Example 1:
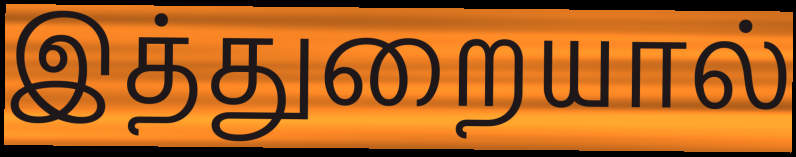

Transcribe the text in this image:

இத்துறையால்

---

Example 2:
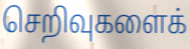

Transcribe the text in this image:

செறிவுகளைக்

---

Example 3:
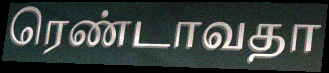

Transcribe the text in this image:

ரெண்டாவதா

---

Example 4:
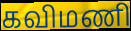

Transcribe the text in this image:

கவிமணி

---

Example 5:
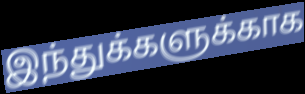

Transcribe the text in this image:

இந்துக்களுக்காக